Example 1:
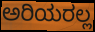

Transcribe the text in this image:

ಅರಿಯರಲ್ಲ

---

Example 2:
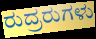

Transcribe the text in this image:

ರುದ್ರರುಗಳು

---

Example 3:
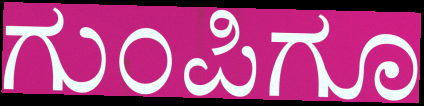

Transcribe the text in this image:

ಗುಂಪಿಗೂ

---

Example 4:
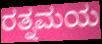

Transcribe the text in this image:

ರತ್ನಮಯ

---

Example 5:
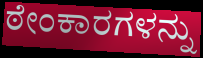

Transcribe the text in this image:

ಠೇಂಕಾರಗಳನ್ನು